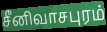
சீனிவாசபுரம்